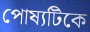
পোষ্যটিকে